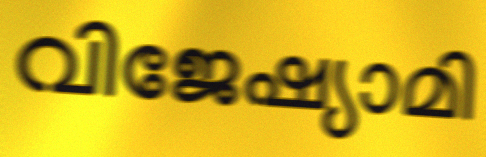
വിജേഷ്യാമി